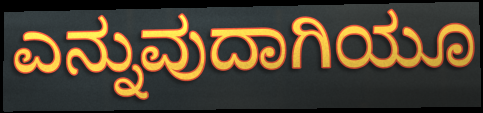
ಎನ್ನುವುದಾಗಿಯೂ